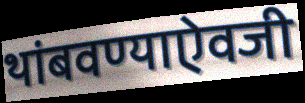
थांबवण्याऐवजी